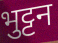
भुट्टन